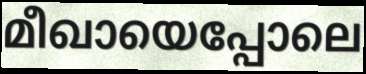
മീഖായെപ്പോലെ